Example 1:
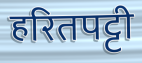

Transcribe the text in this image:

हरितपट्टी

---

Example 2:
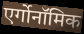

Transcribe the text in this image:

एर्गोनॉमिक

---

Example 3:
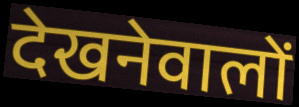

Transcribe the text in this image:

देखनेवालों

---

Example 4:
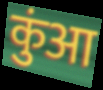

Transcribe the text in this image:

कुंआ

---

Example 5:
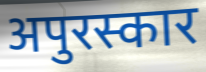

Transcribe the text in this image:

अपुरस्कार